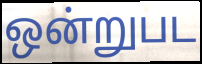
ஒன்றுபட